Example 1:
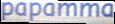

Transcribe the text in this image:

papamma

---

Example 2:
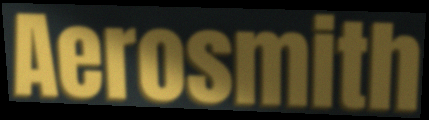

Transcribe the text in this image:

Aerosmith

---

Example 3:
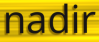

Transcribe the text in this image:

nadir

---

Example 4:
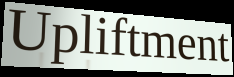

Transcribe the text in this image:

Upliftment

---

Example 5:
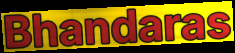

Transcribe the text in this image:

Bhandaras